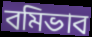
বমিভাব